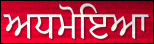
ਅਧਮੋਇਆ